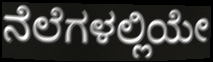
ನೆಲೆಗಳಲ್ಲಿಯೇ